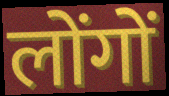
लोंगों